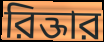
রিক্তার